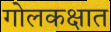
गोलकक्षात